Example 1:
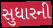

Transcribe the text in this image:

સુધારની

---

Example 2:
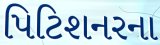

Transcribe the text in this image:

પિટિશનરના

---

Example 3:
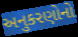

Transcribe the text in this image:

અનુકરણોનો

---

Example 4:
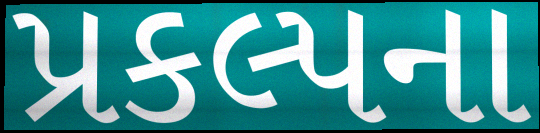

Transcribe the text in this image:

પ્રકલ્પના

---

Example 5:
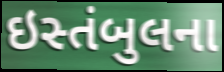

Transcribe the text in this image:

ઇસ્તંબુલના